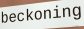
beckoning